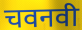
चवनवी